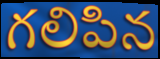
గలిపిన